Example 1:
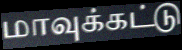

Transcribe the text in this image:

மாவுக்கட்டு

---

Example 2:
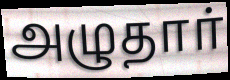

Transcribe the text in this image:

அழுதார்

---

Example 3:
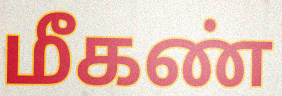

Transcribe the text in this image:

மீகண்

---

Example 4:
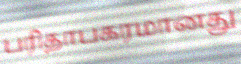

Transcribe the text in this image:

பரிதாபகரமானது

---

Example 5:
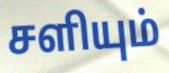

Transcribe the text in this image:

சளியும்